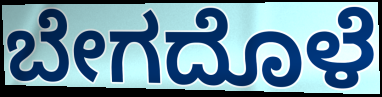
ಬೇಗದೊಳೆ